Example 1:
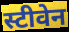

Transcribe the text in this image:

स्टीवेन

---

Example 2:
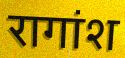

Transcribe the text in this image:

रागांश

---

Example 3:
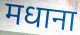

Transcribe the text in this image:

मधाना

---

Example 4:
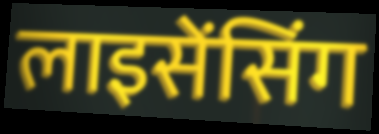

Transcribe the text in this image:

लाइसेंसिंग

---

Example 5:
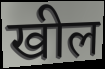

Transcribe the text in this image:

खील